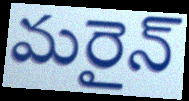
మరైన్